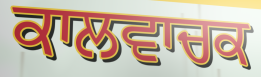
ਕਾਲਵਾਚਕ